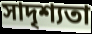
সাদৃশ্যতা